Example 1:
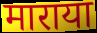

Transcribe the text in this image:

माराया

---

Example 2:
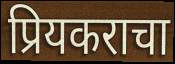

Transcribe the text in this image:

प्रियकराचा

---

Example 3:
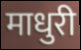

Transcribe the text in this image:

माधुरी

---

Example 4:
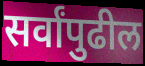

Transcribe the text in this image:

सर्वांपुढील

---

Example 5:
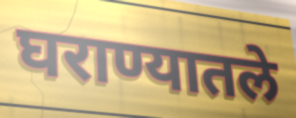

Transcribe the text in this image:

घराण्यातले